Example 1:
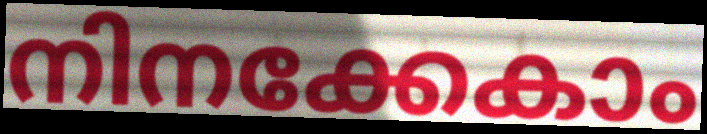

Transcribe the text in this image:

നിനക്കേകാം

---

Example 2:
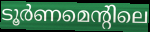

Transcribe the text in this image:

ടൂർണമെന്റിലെ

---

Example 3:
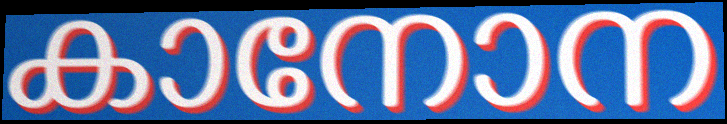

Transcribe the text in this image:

കാനോന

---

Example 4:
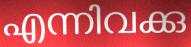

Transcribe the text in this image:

എന്നിവക്കു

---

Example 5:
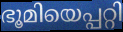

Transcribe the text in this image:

ഭൂമിയെപ്പറ്റി